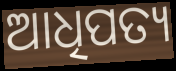
ଆଧିପତ୍ୟ